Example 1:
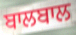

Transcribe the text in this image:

ਬਾਲਬਾਲ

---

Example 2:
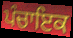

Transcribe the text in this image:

ਪੰਚਾਇਕ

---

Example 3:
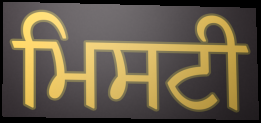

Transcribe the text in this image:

ਮਿਸਟੀ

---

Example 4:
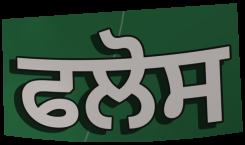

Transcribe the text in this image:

ਫਲੋਸ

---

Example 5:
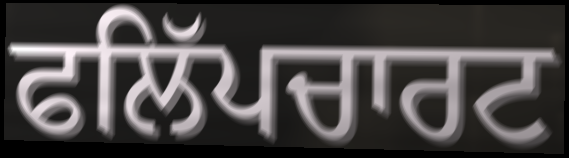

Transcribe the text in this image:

ਫਲਿੱਪਚਾਰਟ